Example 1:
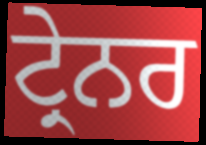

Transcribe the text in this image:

ਟ੍ਰੇਨਰ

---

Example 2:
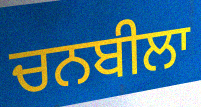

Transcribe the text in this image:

ਚਨਬੀਲਾ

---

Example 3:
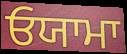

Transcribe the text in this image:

ਓਯਾਮਾ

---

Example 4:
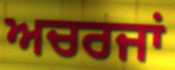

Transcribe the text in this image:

ਅਚਰਜਾਂ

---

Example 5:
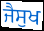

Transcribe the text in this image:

ਜੈਸੁਖ